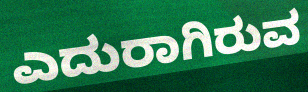
ಎದುರಾಗಿರುವ